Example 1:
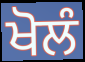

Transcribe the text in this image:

ਖੋਲੰ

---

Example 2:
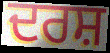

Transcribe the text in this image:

ਦਰਸ਼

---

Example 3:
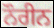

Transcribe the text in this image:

ਨੌਰੀਨ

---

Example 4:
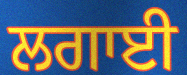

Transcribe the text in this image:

ਲਗਾਈ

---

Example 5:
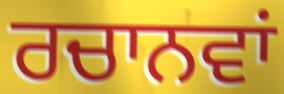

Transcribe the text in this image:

ਰਚਾਨਵਾਂ